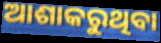
ଆଶାକରୁଥିବା